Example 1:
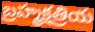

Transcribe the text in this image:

బ్రహ్మక్షత్రియ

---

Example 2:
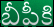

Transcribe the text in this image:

బీపీకి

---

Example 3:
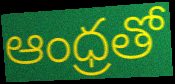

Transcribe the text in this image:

ఆంధ్రతో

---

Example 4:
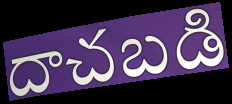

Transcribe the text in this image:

దాచబడి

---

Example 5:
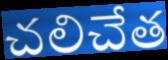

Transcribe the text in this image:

చలిచేత